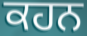
ਕਹਨ